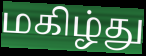
மகிழ்து